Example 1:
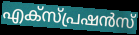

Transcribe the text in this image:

എക്സ്പ്രഷൻസ്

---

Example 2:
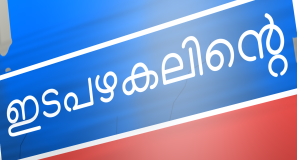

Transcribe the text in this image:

ഇടപഴകലിന്റെ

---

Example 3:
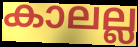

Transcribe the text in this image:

കാലല്ല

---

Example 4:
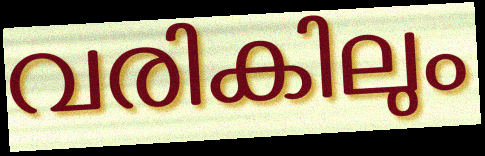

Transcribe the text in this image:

വരികിലും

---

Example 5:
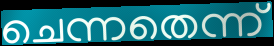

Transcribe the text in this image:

ചെന്നതെന്ന്